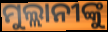
ମୁଲ୍ଲାନୀଙ୍କୁ